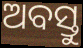
ଅବସ୍ତୁ